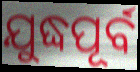
ଯୁଦ୍ଧପୂର୍ବ